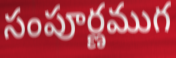
సంపూర్ణముగ